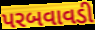
પરબવાવડી